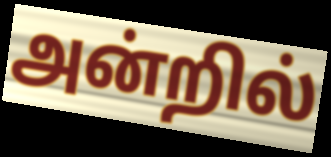
அன்றில்